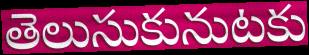
తెలుసుకునుటకు